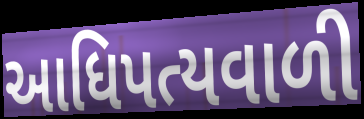
આધિપત્યવાળી